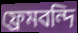
ফ্রেমবন্দি